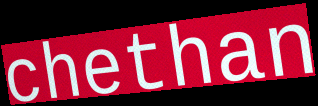
chethan